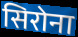
सिरोना